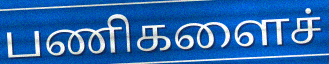
பணிகளைச்